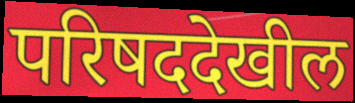
परिषददेखील